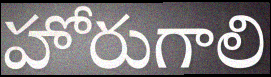
హోరుగాలి